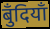
बुँदियाँ